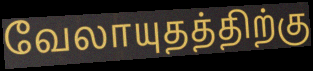
வேலாயுதத்திற்கு